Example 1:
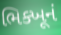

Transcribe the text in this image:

ભિક્ખૂનં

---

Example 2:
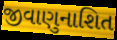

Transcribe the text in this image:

જીવાણુનાશિત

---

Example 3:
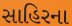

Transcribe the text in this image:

સાહિરના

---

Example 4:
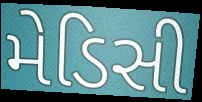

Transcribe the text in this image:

મેડિસી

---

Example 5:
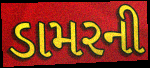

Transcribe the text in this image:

ડામરની